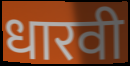
धारवी